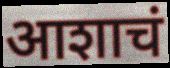
आशाचं